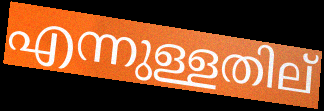
എന്നുള്ളതില്